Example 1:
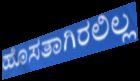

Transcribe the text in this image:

ಹೊಸತಾಗಿರಲಿಲ್ಲ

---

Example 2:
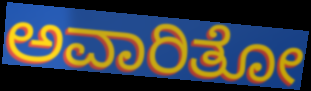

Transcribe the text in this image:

ಅವಾರಿತೋ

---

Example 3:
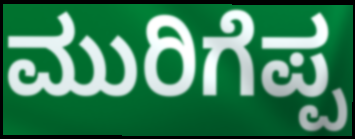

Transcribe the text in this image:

ಮುರಿಗೆಪ್ಪ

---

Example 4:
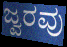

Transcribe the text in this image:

ಜ್ವರವು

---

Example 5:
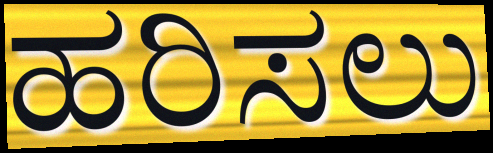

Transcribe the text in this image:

ಹರಿಸಲು